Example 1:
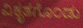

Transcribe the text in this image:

ವಿಕೃತಗೊಂಡು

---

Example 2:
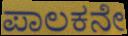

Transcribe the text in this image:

ಪಾಲಕನೇ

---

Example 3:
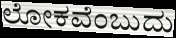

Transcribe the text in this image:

ಲೋಕವೆಂಬುದು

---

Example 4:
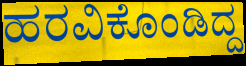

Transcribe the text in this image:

ಹರವಿಕೊಂಡಿದ್ದ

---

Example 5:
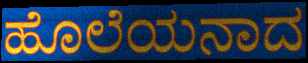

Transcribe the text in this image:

ಹೊಲೆಯನಾದ